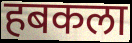
हबकला